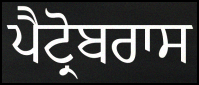
ਪੈਟ੍ਰੋਬਰਾਸ